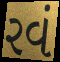
રવં